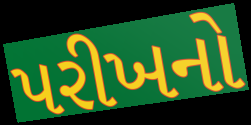
પરીખનો